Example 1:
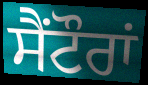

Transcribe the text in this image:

ਸੈਂਟੌਰਾਂ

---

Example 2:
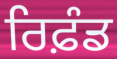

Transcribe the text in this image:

ਰਿਫ਼ੰਡ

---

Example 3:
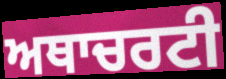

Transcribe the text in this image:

ਅਥਾਚਰਟੀ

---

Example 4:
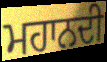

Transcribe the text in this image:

ਮਹਾਨਦੀ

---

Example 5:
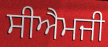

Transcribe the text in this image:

ਸੀਐਮਜੀ